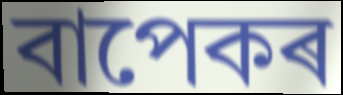
বাপেকৰ